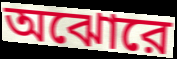
অঝোরে